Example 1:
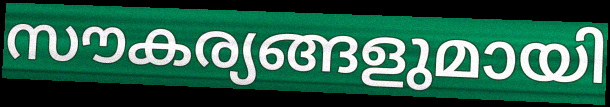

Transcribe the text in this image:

സൗകര്യങ്ങളുമായി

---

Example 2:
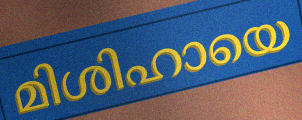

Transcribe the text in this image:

മിശിഹായെ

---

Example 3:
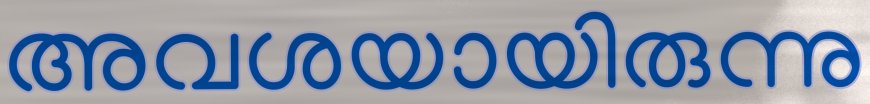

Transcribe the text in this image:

അവശയായിരുന്നു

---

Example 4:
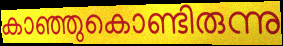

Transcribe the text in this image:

കാഞ്ഞുകൊണ്ടിരുന്നു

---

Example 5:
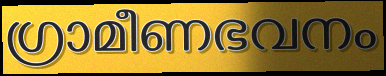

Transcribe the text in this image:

ഗ്രാമീണഭവനം